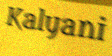
Kalyani